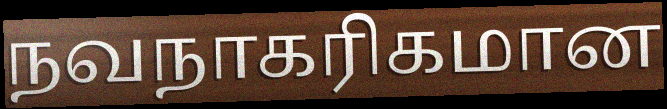
நவநாகரிகமான